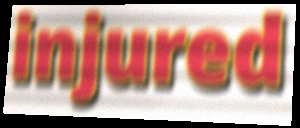
injured